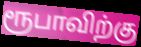
ரூபாவிற்கு